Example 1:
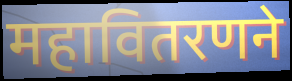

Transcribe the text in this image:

महावितरणने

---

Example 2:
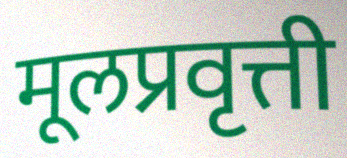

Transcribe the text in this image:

मूलप्रवृत्ती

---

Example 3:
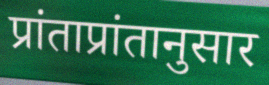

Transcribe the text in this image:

प्रांताप्रांतानुसार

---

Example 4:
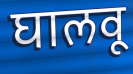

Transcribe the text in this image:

घालवू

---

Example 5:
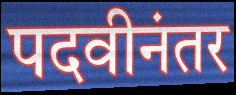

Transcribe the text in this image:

पदवीनंतर